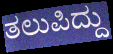
ತಲುಪಿದ್ದು